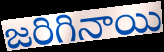
జరిగినాయి